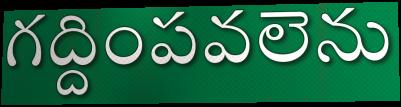
గద్దింపవలెను